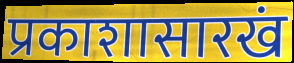
प्रकाशासारखं